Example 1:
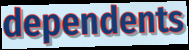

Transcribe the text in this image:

dependents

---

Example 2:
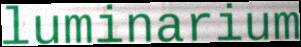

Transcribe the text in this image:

luminarium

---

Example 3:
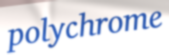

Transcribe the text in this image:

polychrome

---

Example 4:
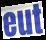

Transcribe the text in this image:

eut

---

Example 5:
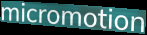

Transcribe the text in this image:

micromotion